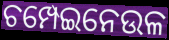
ଚମ୍ପେଇନେଉଳ